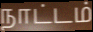
நாட்டம்